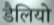
डैलियो